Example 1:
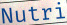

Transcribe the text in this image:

Nutri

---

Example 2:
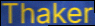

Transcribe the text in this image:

Thaker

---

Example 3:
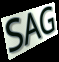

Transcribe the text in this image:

SAG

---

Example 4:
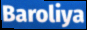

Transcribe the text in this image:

Baroliya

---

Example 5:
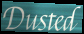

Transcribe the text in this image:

Dusted